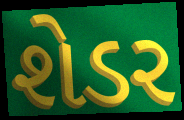
શેડર